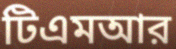
টিএমআর